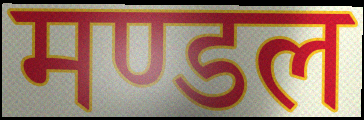
मण्डल